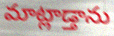
మాట్లాడ్తాను